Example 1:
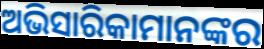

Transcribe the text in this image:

ଅଭିସାରିକାମାନଙ୍କର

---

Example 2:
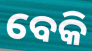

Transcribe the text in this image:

ବେକି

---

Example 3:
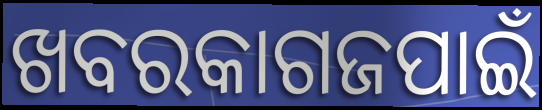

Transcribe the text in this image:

ଖବରକାଗଜପାଇଁ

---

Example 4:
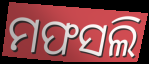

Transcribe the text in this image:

ମଫସଲି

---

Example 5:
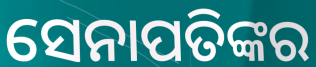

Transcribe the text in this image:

ସେନାପତିଙ୍କର